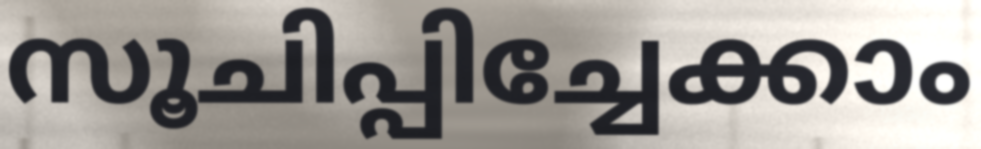
സൂചിപ്പിച്ചേക്കാം